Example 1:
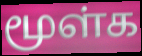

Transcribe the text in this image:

மூள்க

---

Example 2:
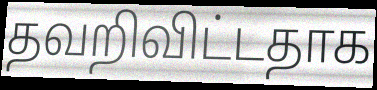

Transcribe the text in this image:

தவறிவிட்டதாக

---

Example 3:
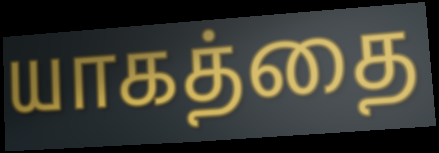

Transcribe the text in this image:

யாகத்தை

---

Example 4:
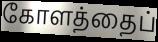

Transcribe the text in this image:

கோளத்தைப்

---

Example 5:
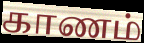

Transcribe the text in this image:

காணம்